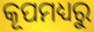
କୂପମଧ୍ୟରୁ